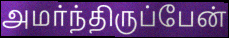
அமர்ந்திருப்பேன்